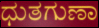
ಧುತಗುಣಾ